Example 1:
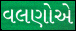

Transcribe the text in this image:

વલણોએ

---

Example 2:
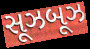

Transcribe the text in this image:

સૂઝબૂઝ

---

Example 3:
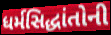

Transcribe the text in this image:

ધર્મસિદ્ધાંતોની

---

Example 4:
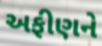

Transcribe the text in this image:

અફીણને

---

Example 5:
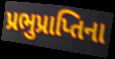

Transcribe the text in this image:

પ્રભુપ્રાપ્તિના